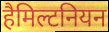
हैमिल्टनियन